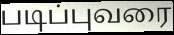
படிப்புவரை